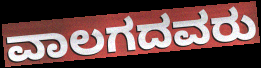
ವಾಲಗದವರು